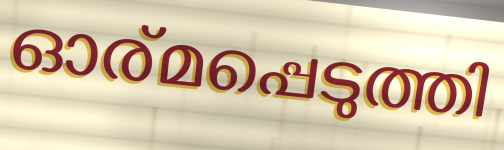
ഓര്മപ്പെടുത്തി